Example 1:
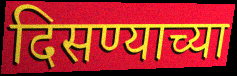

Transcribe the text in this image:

दिसण्याच्या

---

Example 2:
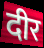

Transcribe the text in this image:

दीर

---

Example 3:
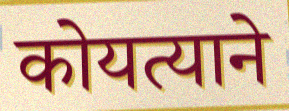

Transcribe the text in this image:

कोयत्याने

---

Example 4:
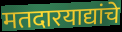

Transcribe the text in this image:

मतदारयाद्यांचे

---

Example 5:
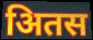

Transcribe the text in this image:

अितस